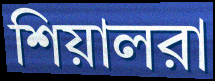
শিয়ালরা